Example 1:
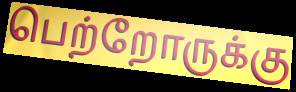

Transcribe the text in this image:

பெற்றோருக்கு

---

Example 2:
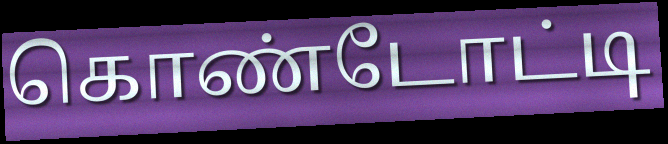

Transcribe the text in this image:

கொண்டோட்டி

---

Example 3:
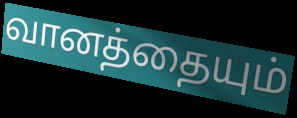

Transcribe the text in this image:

வானத்தையும்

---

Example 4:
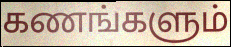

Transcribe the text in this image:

கணங்களும்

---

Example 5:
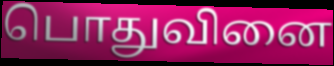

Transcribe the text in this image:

பொதுவினை